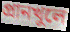
প্রানখুলে